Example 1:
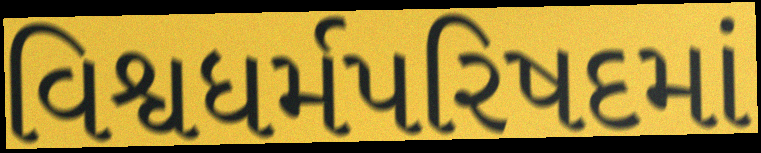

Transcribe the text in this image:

વિશ્વધર્મપરિષદમાં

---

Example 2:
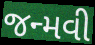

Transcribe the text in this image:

જન્મવી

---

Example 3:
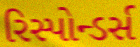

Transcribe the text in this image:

રિસ્પોન્ડર્સ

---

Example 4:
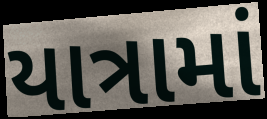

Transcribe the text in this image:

યાત્રામાં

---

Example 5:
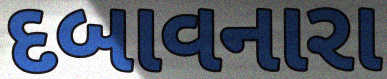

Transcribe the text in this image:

દબાવનારા